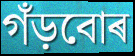
গঁড়বোৰ